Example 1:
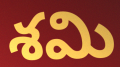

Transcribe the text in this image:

శమి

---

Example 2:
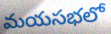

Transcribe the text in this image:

మయసభలో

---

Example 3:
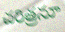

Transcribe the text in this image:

చరిత్రనూ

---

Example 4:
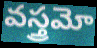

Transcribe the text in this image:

వస్త్రమో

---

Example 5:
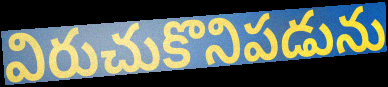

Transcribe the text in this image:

విరుచుకొనిపడును